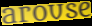
arouse